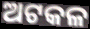
ଅଟକଳ